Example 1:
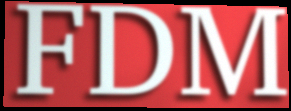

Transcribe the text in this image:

FDM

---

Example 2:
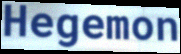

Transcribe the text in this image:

Hegemon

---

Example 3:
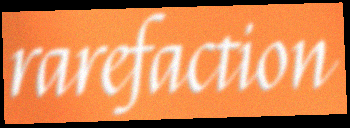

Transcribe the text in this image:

rarefaction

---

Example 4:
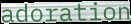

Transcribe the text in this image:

adoration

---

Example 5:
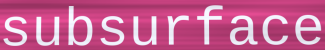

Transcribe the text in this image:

subsurface